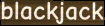
blackjack